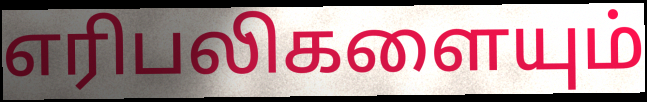
எரிபலிகளையும்